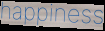
happiness